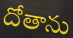
దోతాను